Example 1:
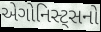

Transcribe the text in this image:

એગોનિસ્ટ્સનો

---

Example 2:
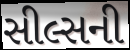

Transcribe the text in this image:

સીલ્સની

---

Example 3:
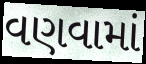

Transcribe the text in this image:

વણવામાં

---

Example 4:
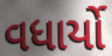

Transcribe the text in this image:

વધાર્યો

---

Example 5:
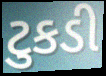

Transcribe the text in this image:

ટુકડી